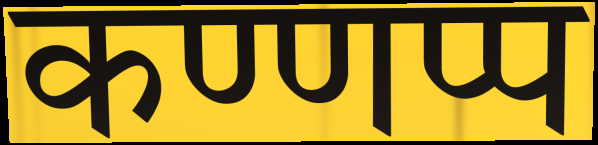
कण्णप्प